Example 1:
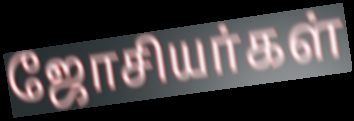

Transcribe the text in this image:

ஜோசியர்கள்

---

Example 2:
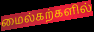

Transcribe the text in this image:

மைல்கற்களில்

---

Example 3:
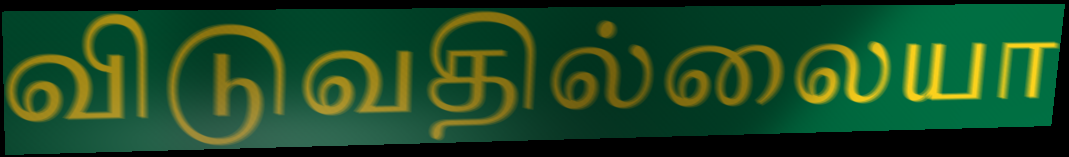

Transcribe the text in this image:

விடுவதில்லையா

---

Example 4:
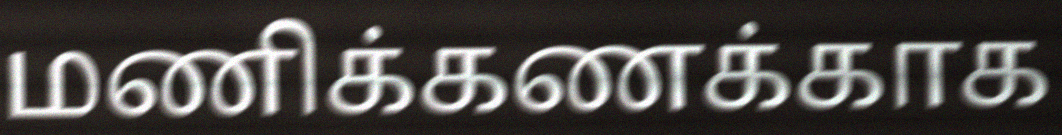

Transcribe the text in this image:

மணிக்கணக்காக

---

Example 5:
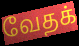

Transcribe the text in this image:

வேதக்